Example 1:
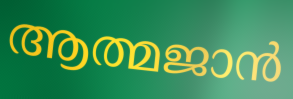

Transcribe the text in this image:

ആത്മജാൻ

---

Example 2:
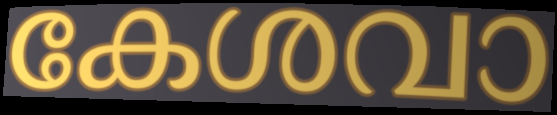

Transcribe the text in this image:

കേശവാ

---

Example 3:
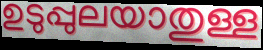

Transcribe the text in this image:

ഉടുപ്പുലയാതുള്ള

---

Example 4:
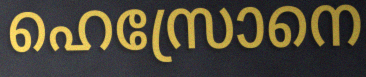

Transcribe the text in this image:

ഹെസ്രോനെ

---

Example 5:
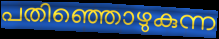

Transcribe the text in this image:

പതിഞ്ഞൊഴുകുന്ന